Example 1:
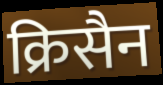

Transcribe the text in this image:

क्रिसैन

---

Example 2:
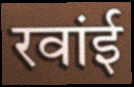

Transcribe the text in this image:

रवांई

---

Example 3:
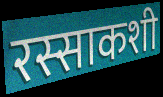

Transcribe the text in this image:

रस्साकशी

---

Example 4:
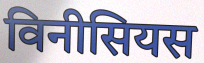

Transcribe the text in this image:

विनीसियस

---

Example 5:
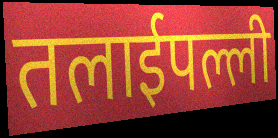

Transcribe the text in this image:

तलाईपल्ली